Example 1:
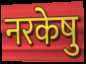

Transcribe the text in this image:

नरकेषु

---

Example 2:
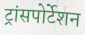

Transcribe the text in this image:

ट्रांसपोर्टेशन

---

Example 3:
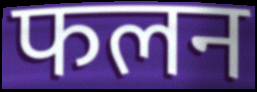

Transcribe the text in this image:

फलन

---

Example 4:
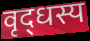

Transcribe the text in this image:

वृद्धस्य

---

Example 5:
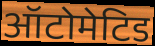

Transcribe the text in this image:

ऑटोमेटिड